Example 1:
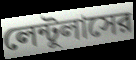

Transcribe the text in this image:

লেন্টুলাসের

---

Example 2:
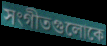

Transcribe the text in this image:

সংগীতগুলোকে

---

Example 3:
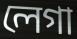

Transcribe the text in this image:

লেগা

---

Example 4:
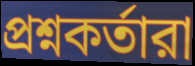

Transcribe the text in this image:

প্রশ্নকর্তারা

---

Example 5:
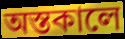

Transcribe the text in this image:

অস্তকালে